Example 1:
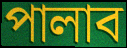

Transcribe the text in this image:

পালাব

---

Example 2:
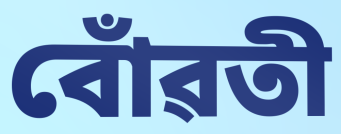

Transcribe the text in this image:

বোঁৱতী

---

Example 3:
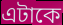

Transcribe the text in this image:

এটাকে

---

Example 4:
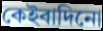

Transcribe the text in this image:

কেইবাদিনো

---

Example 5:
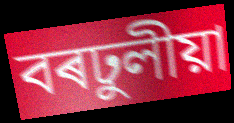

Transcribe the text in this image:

বৰঢুলীয়া